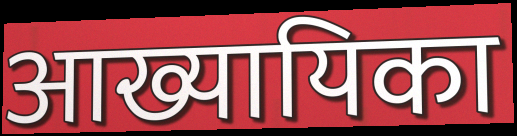
आख्यायिका